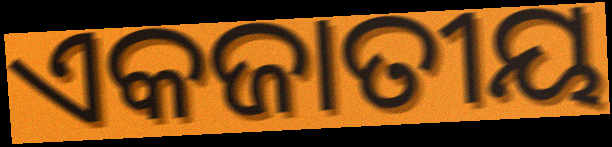
ଏକଜାତୀୟ